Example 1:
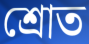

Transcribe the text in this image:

শ্ৰোত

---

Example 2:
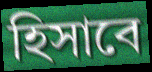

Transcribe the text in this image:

হিসাবে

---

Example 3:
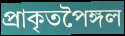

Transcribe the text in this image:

প্ৰাকৃতপৈঙ্গল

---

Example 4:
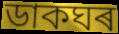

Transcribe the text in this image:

ডাকঘৰ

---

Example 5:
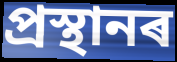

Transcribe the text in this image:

প্ৰস্থানৰ